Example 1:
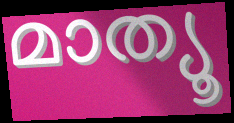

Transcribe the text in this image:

മാത്യൂ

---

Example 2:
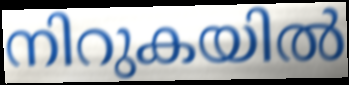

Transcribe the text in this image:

നിറുകയിൽ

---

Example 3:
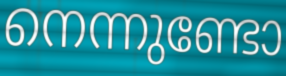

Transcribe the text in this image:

നെന്നുണ്ടോ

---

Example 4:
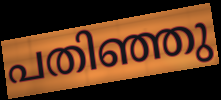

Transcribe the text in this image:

പതിഞ്ഞു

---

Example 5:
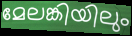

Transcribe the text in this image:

മേലങ്കിയിലും